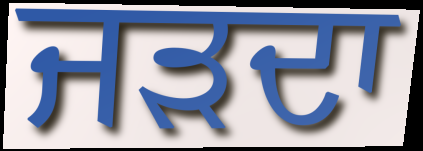
ਜੜਦਾ